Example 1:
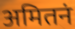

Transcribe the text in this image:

अमितनं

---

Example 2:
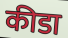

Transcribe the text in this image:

कीडा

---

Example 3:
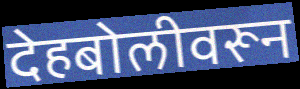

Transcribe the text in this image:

देहबोलीवरून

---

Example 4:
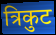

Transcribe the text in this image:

त्रिकुट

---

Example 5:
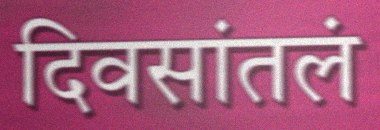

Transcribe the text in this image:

दिवसांतलं